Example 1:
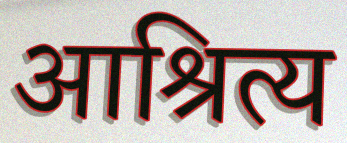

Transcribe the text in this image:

आश्रित्य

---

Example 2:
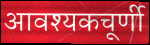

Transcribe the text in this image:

आवश्यकचूर्णी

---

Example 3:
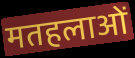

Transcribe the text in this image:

मतहलाओं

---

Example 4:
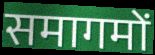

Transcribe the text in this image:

समागमों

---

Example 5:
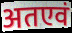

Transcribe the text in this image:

अतएवं